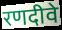
रणदीवे